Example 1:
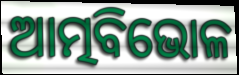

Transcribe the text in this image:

ଆତ୍ମବିଭୋଳ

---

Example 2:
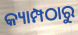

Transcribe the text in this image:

କ୍ୟାମ୍ପଠାରୁ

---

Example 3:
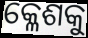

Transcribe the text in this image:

କ୍ଳେଶକୁ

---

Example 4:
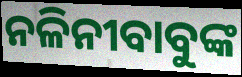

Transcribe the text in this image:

ନଳିନୀବାବୁଙ୍କ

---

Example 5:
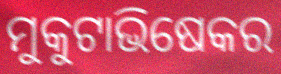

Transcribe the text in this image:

ମୁକୁଟାଭିଷେକର